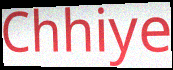
Chhiye